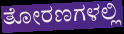
ತೋರಣಗಳಲ್ಲಿ